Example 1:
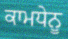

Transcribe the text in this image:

ਕਾਮਧੇਨੂ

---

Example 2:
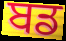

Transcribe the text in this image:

ਬਡ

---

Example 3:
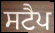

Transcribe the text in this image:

ਸਟੈਪ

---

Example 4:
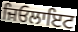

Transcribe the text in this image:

ਜ਼ਿਓਲਾਇਟ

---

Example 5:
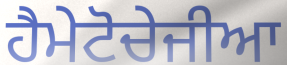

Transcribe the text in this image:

ਹੈਮੇਟੋਚੇਜੀਆ